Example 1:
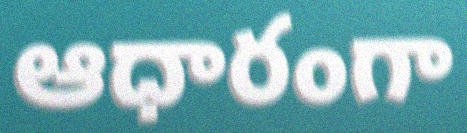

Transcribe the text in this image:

ఆధారంగా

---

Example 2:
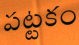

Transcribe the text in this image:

పట్టకం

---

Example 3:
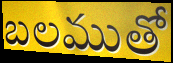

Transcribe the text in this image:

బలముతో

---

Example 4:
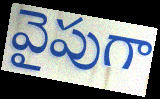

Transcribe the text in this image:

వైపుగా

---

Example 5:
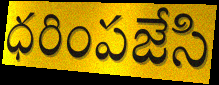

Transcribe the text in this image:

ధరింపజేసి